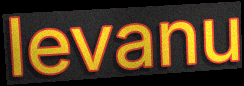
levanu